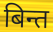
बिन्त